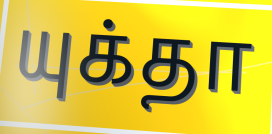
யுக்தா